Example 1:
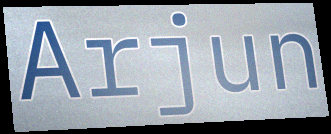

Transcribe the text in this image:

Arjun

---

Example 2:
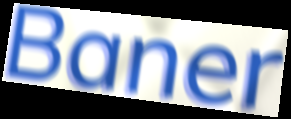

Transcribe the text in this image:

Baner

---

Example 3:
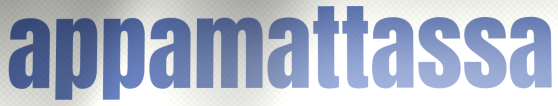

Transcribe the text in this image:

appamattassa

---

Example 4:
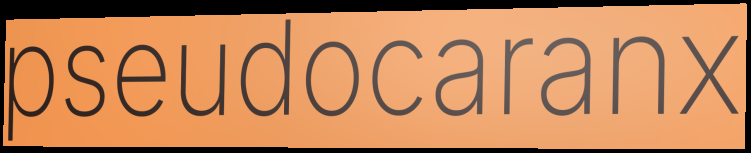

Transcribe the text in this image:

pseudocaranx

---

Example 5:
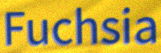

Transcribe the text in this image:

Fuchsia